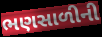
ભણસાળીની